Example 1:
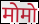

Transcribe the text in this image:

मोमो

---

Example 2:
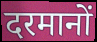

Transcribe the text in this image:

दरमानों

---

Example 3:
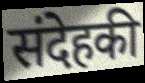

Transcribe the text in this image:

संदेहकी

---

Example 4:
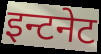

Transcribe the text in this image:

इन्टनेट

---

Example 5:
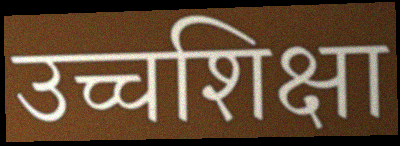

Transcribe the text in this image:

उच्चशिक्षा